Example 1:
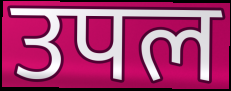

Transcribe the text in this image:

उपल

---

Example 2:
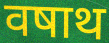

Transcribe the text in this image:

वषाथ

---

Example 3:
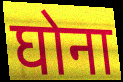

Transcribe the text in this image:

घोना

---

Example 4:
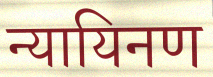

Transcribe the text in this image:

न्यायिनण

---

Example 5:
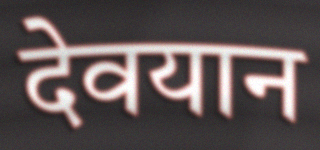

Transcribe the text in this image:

देवयान